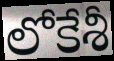
లోకేశీ